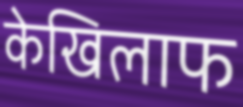
केखिलाफ